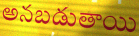
అనబడుతాయి